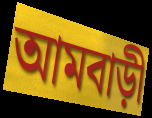
আমবাড়ী